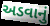
અડવાનું